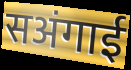
सअंगाई